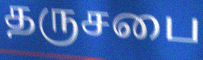
தருசபை